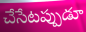
చేసేటప్పుడూ